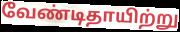
வேண்டிதாயிற்று